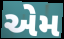
એેમ